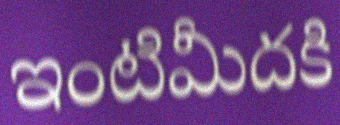
ఇంటిమీదకి